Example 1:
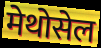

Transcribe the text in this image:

मेथोसेल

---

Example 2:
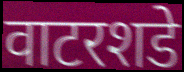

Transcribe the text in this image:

वाटरशडे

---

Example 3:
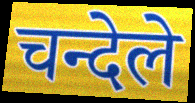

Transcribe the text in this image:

चन्देले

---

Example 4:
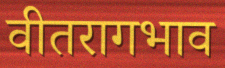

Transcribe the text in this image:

वीतरागभाव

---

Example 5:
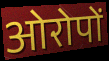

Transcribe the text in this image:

ओरोपों